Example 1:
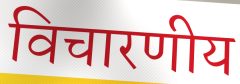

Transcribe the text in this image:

विचारणीय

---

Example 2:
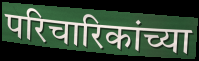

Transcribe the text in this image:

परिचारिकांच्या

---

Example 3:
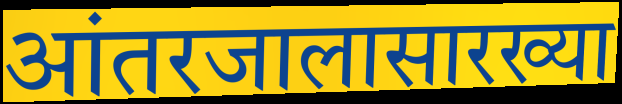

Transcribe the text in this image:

आंतरजालासारख्या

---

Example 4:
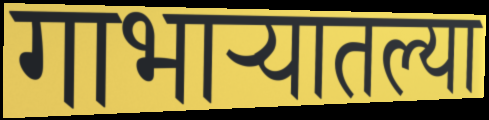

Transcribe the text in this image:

गाभाऱ्यातल्या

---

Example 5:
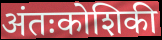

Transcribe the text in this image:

अंतःकोशिकी